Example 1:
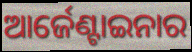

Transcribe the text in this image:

ଆର୍ଜେଣ୍ଟାଇନାର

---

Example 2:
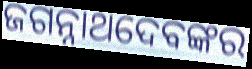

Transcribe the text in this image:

ଜଗନ୍ନାଥଦେବଙ୍କର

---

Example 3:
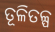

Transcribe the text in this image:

ତୂଳିତଳ୍ପ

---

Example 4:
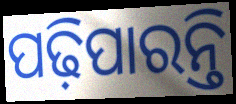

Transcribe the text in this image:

ପଢ଼ିପାରନ୍ତି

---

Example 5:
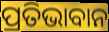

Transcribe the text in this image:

ପ୍ରତିଭାବାନ